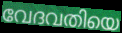
വേദവതിയെ